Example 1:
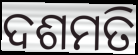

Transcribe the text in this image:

ଦଶମତି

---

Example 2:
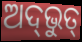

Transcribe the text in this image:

ଅଦ୍‌ଭୁତ୍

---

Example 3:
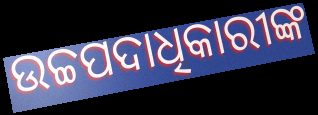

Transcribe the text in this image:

ଉଚ୍ଚପଦାଧିକାରୀଙ୍କ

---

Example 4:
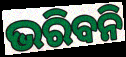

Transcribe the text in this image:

ଭରିବନି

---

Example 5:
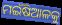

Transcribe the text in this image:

ମଇଁଷିଆଳକୁ